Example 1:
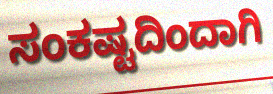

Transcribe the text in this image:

ಸಂಕಷ್ಟದಿಂದಾಗಿ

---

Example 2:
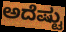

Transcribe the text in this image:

ಅದೆಷ್ಟು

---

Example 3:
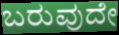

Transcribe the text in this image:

ಬರುವುದೇ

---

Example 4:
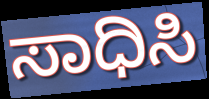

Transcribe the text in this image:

ಸಾಧಿಸಿ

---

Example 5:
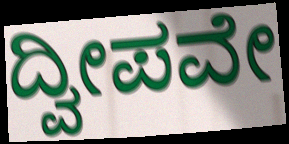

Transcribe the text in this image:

ದ್ವೀಪವೇ